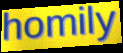
homily